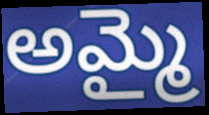
అమ్మై